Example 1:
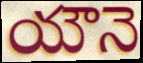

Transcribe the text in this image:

యౌనె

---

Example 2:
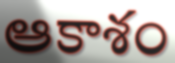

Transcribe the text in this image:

ఆకాశం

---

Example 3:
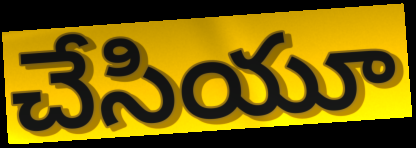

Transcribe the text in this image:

చేసియూ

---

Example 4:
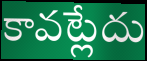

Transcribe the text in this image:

కావట్లేదు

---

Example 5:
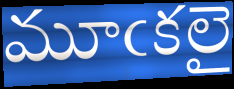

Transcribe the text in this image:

మూఁకలై